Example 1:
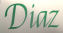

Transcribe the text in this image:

Diaz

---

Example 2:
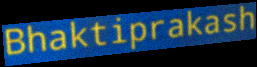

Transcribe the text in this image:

Bhaktiprakash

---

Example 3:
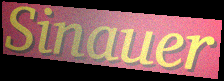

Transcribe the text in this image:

Sinauer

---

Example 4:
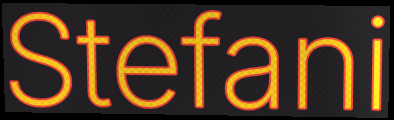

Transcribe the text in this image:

Stefani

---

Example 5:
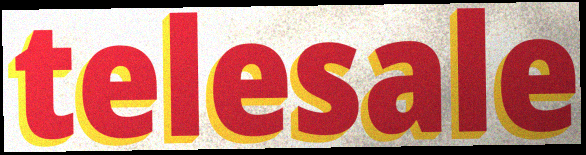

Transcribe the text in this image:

telesale